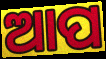
ଆପ